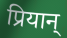
प्रियान्